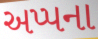
અપ્પના